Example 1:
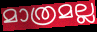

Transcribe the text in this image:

മാത്രമല്ല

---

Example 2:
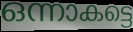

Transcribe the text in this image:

ഒന്നാകട്ടെ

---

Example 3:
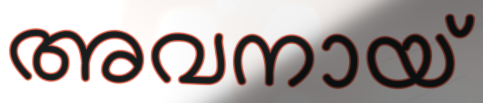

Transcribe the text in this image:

അവനായ്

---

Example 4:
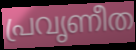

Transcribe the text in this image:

പ്രവൃണീത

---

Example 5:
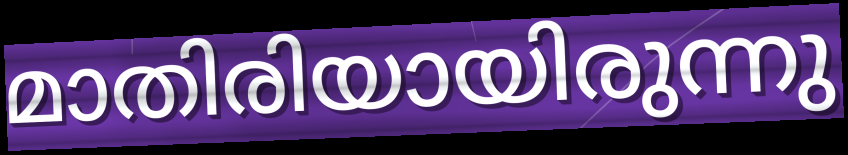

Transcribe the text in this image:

മാതിരിയായിരുന്നു